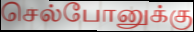
செல்போனுக்கு